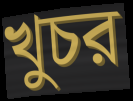
খুচর